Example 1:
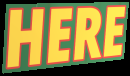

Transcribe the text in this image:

HERE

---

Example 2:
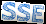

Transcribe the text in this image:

SSE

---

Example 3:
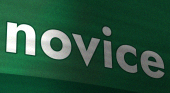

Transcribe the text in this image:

novice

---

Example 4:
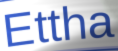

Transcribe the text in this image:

Ettha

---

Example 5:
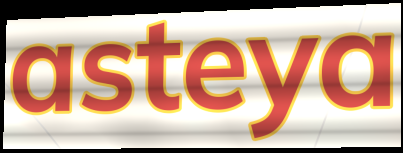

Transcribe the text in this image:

asteya